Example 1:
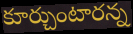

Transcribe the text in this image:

కూర్చుంటారన్న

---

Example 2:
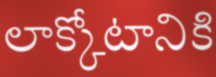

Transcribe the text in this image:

లాక్కోటానికి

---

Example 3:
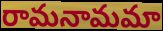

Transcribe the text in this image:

రామనామమా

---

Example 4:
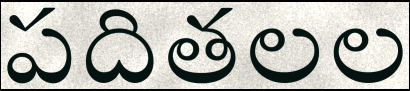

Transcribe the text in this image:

పదితలల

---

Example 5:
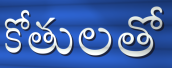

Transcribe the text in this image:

కోతులతో